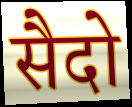
सैदो